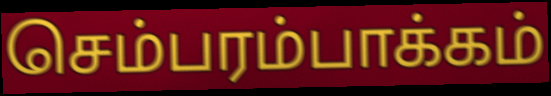
செம்பரம்பாக்கம்